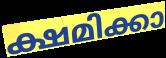
ക്ഷമിക്കാ